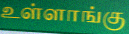
உள்ளாங்கு